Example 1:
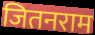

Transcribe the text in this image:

जितनराम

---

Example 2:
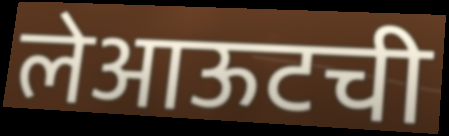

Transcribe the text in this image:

लेआऊटची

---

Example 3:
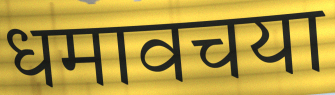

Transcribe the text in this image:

धमावचया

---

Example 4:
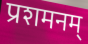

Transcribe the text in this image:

प्रशमनम्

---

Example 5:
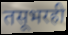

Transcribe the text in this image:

तसूभरही